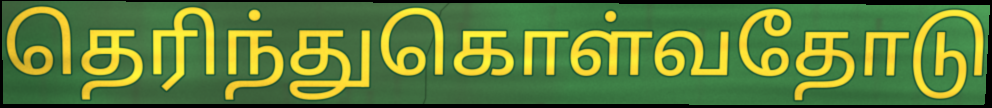
தெரிந்துகொள்வதோடு